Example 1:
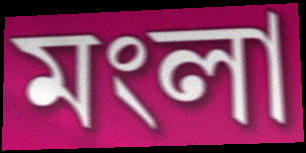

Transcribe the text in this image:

মংলা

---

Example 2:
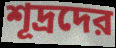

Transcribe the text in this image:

শূদ্রদের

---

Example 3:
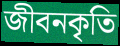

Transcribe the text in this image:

জীবনকৃতি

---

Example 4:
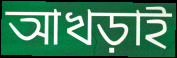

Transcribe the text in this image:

আখড়াই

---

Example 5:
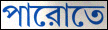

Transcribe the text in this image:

পারোতে